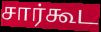
சார்கூட